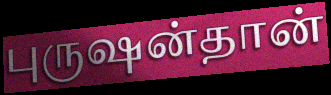
புருஷன்தான்